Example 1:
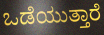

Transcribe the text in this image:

ಒಡೆಯುತ್ತಾರೆ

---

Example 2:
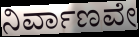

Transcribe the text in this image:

ನಿರ್ವಾಣವೇ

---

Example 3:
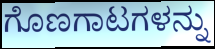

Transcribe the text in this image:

ಗೊಣಗಾಟಗಳನ್ನು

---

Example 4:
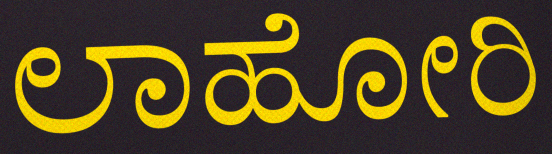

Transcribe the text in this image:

ಲಾಹೋರಿ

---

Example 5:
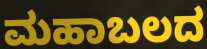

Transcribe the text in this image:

ಮಹಾಬಲದ